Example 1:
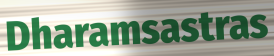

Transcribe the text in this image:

Dharamsastras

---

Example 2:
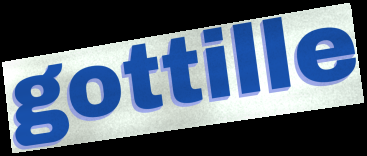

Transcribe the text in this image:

gottille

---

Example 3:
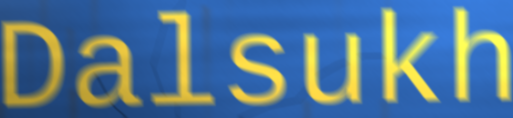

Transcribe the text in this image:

Dalsukh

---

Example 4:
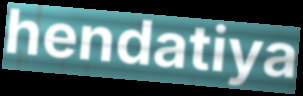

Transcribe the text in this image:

hendatiya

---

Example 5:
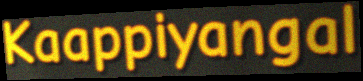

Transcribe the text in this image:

Kaappiyangal